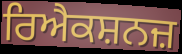
ਰਿਐਕਸ਼ਨਜ਼